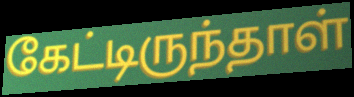
கேட்டிருந்தாள்